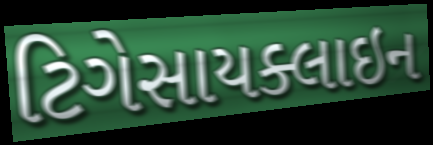
ટિગેસાયક્લાઇન